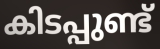
കിടപ്പുണ്ട്